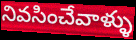
నివసించేవాళ్ళు